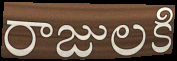
రాజులకి